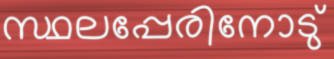
സ്ഥലപ്പേരിനോടു്